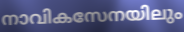
നാവികസേനയിലും